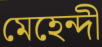
মেহেন্দী